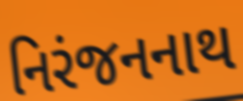
નિરંજનનાથ